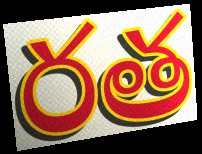
రత